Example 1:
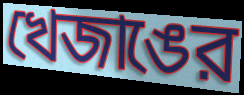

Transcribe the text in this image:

খেজাঙের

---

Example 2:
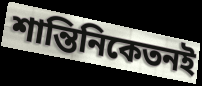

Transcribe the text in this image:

শান্তিনিকেতনই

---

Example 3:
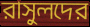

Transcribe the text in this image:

রাসুলদের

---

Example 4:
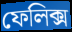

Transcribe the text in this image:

ফেলিক্স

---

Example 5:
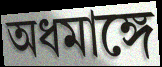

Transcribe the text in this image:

অধমাঙ্গে